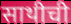
साथीची